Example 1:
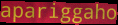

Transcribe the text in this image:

apariggaho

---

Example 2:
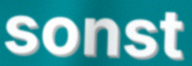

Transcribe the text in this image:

sonst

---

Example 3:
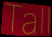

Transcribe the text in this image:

Tall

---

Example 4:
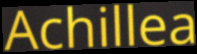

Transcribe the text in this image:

Achillea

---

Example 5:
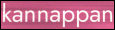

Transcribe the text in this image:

kannappan